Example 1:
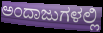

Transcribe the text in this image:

ಅಂದಾಜುಗಳಲ್ಲಿ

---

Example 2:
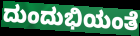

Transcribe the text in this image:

ದುಂದುಭಿಯಂತೆ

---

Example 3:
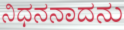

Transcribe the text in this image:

ನಿಧನನಾದನು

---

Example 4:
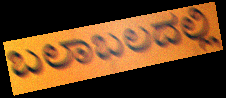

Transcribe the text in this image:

ಬಲಾಬಲದಲ್ಲಿ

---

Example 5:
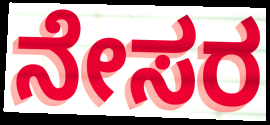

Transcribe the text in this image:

ನೇಸರ